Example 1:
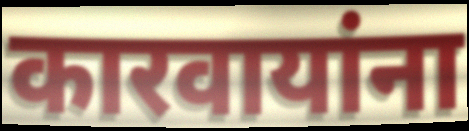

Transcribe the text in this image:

कारवायांना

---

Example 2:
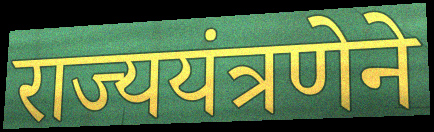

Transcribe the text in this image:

राज्ययंत्रणेने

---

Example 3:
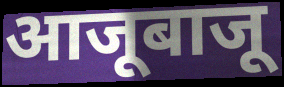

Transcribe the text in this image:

आजूबाजू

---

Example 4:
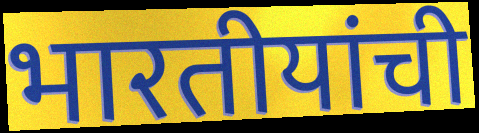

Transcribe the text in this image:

भारतीयांची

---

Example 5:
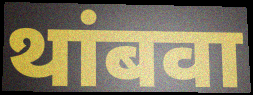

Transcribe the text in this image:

थांबवा